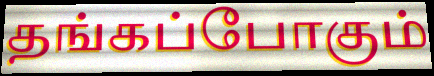
தங்கப்போகும்